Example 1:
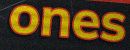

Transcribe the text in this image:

ones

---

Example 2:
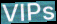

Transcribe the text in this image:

VIPs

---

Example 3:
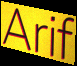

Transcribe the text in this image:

Arif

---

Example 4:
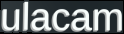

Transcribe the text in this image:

ulacam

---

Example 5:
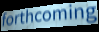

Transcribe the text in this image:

forthcoming